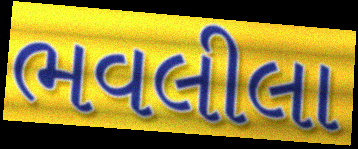
ભવલીલા